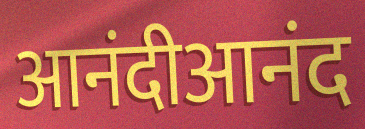
आनंदीआनंद